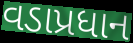
વડાપ્રધાન